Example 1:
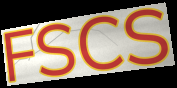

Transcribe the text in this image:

FSCS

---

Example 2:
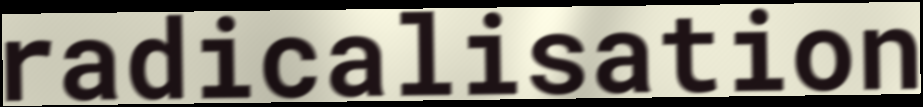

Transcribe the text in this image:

radicalisation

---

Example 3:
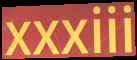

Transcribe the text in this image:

xxxiii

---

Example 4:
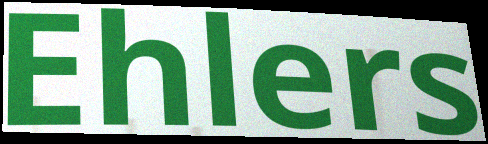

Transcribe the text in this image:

Ehlers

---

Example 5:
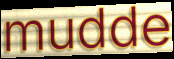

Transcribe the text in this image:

mudde